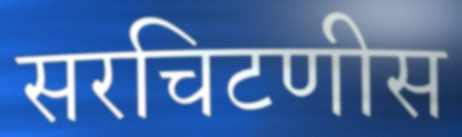
सरचिटणीस